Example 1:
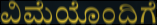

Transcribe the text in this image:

ವಿಮೆಯೊಂದಿಗೆ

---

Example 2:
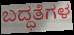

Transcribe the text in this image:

ಬದ್ಧತೆಗಳ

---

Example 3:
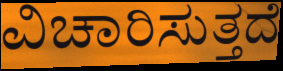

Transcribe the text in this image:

ವಿಚಾರಿಸುತ್ತದೆ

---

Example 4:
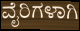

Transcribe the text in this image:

ವೈರಿಗಳಾಗಿ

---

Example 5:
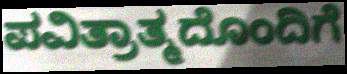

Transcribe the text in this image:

ಪವಿತ್ರಾತ್ಮದೊಂದಿಗೆ